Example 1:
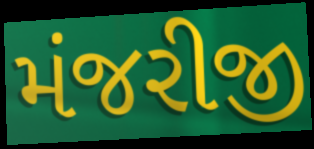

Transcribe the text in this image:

મંજરીજી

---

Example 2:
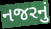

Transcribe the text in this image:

નજરનું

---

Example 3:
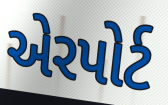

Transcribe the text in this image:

એરપોર્ટ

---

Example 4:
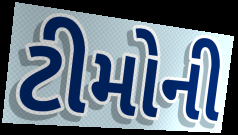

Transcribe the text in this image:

ટીમોની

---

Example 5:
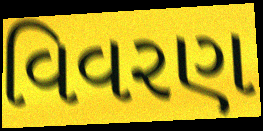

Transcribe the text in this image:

વિવરણ